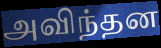
அவிந்தன